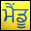
ਮੈਂਡੂ